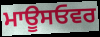
ਮਾਊਸਓਵਰ